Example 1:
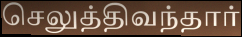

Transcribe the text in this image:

செலுத்திவந்தார்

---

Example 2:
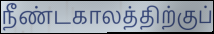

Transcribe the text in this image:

நீண்டகாலத்திற்குப்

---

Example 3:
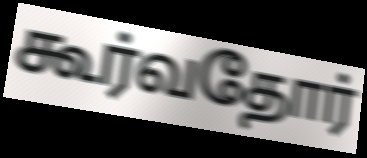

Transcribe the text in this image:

கூர்வதோர்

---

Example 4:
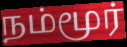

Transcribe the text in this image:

நம்மூர்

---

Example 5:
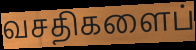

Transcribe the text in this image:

வசதிகளைப்